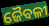
ଜୈବଳୀ